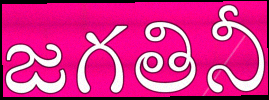
జగతినీ